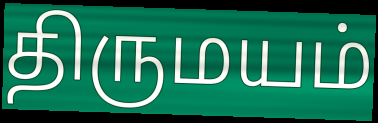
திருமயம்